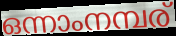
ഒന്നാംനമ്പര്